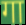
गा